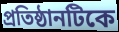
প্রতিষ্ঠানটিকে